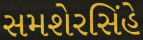
સમશેરસિંહે